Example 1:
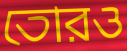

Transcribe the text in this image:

তোরও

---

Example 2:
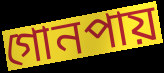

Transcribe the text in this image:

গোনপায়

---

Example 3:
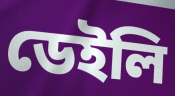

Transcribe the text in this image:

ডেইলি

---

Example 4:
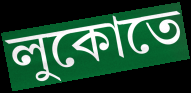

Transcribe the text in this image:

লুকোতে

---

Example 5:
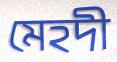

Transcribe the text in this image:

মেহদী